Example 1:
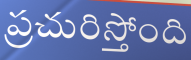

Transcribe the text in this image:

ప్రచురిస్తోంది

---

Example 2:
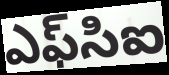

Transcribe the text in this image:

ఎఫ్‌సిఐ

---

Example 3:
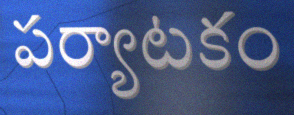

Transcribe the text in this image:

పర్యాటకం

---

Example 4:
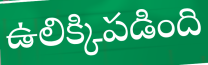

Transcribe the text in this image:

ఉలిక్కిపడింది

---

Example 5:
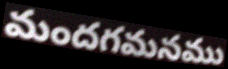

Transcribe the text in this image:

మందగమనము